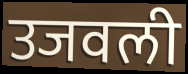
उजवली